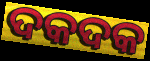
ଦକଦକ